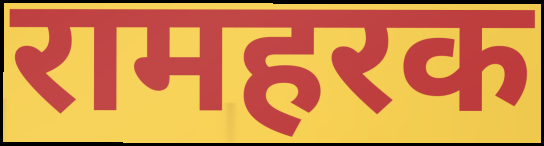
रामहरक